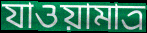
যাওয়ামাত্র